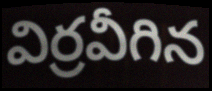
విర్రవీగిన